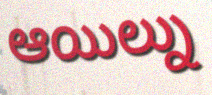
ఆయిల్ను